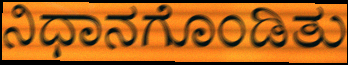
ನಿಧಾನಗೊಂಡಿತು